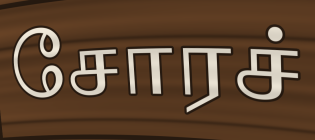
சோரச்